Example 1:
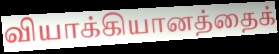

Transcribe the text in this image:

வியாக்கியானத்தைக்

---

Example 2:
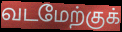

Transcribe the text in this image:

வடமேற்குக்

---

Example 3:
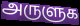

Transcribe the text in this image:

அருளுக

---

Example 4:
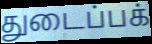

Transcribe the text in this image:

துடைப்பக்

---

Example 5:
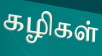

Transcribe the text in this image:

கழிகள்